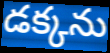
డక్కను